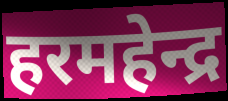
हरमहेन्द्र